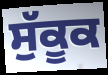
ਸੁੱਕੂਕ